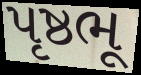
પૃષ્ઠભૂ